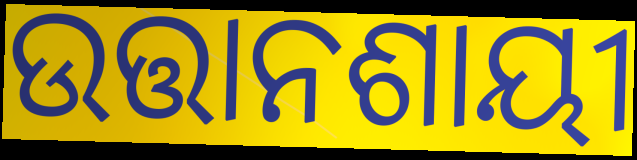
ଉତ୍ତାନଶାୟୀ